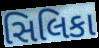
સિલિકા